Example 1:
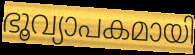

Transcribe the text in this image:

ഭൂവ്യാപകമായി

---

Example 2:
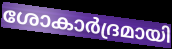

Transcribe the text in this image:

ശോകാർദ്രമായി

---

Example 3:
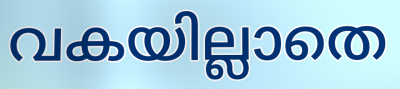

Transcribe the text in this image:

വകയില്ലാതെ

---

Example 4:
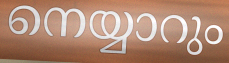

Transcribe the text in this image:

നെയ്യാറും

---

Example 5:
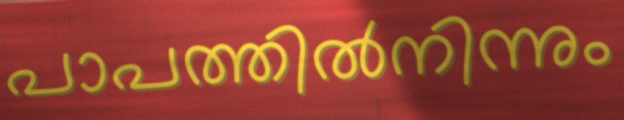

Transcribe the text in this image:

പാപത്തിൽനിന്നും